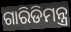
ଗାରିଡିମନ୍ତ୍ର